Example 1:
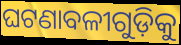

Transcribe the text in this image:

ଘଟଣାବଳୀଗୁଡ଼ିକୁ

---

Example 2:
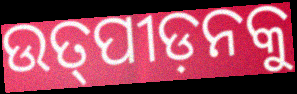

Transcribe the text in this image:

ଉତ୍‌ପୀଡ଼ନକୁ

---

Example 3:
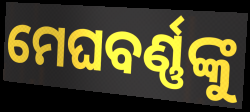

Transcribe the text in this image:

ମେଘବର୍ଣ୍ଣଙ୍କୁ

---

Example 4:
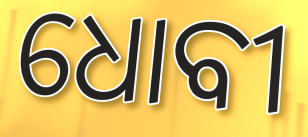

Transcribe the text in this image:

ଧୋବୀ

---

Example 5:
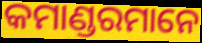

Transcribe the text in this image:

କମାଣ୍ଡରମାନେ